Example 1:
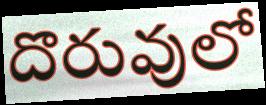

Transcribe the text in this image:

దొరువులో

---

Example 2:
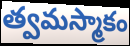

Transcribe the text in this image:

త్వమస్మాకం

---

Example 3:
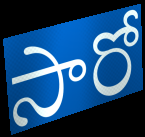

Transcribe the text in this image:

సారో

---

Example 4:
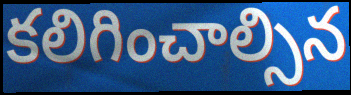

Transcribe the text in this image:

కలిగించాల్సిన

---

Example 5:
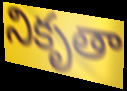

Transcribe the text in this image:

నికృతా